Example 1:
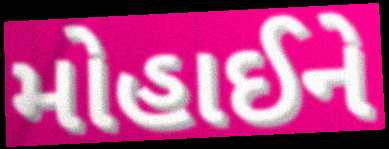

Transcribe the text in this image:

મોહાઈને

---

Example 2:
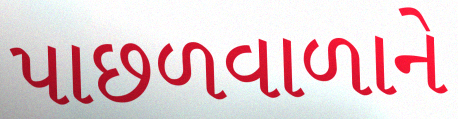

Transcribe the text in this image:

પાછળવાળાને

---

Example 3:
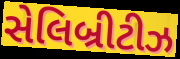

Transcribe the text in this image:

સેલિબ્રીટીઝ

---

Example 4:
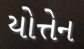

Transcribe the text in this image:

યોત્તેન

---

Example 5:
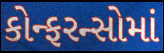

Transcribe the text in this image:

કોન્ફરન્સોમાં